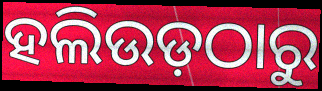
ହଲିଉଡ଼ଠାରୁ